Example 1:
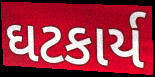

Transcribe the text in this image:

ઘટકાર્ય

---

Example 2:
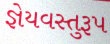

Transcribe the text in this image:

જ્ઞેયવસ્તુરૂપ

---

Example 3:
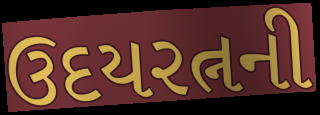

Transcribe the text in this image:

ઉદયરત્નની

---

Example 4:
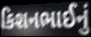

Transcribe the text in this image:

કિશનભાઈનું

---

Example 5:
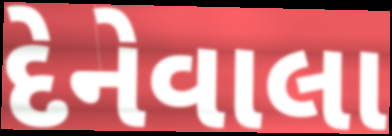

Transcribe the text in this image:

દેનેવાલા